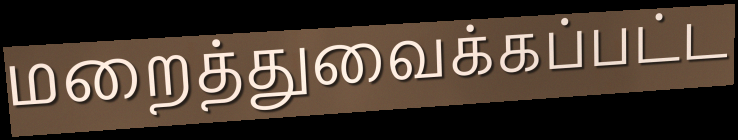
மறைத்துவைக்கப்பட்ட